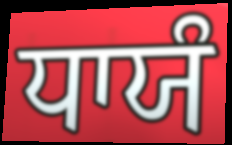
ਧਾਯੰ